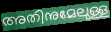
അതിനുമേലുള്ള